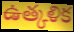
ఉత్కళిక